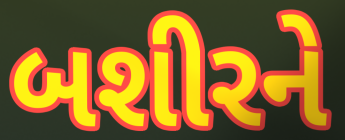
બશીરને